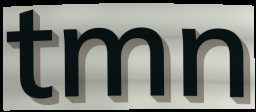
tmn